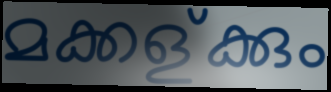
മക്കള്ക്കും